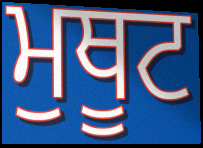
ਮੁਥੂਟ